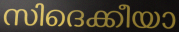
സിദെക്കീയാ